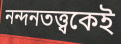
নন্দনতত্ত্বকেই